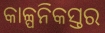
କାଳ୍ପନିକସ୍ତର